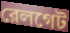
রেলগেট